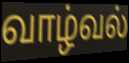
வாழ்வல்